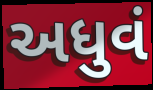
અધુવં